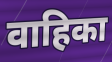
वाहिका